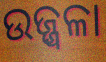
ଉଜ୍ଜ୍ୱଳା